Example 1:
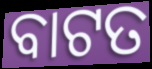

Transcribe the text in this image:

ବାଟତ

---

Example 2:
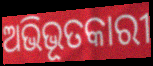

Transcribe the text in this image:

ଅଭିଭୂତକାରୀ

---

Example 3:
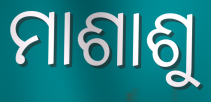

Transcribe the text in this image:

ମାଶାଶୁ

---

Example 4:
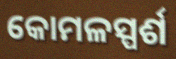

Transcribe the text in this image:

କୋମଳସ୍ପର୍ଶ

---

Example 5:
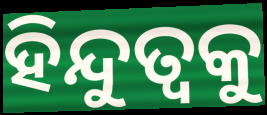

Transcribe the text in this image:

ହିନ୍ଦୁତ୍ୱକୁ